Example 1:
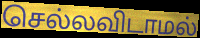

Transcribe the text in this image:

செல்லவிடாமல்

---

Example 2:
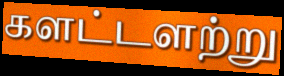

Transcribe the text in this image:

களட்டளற்று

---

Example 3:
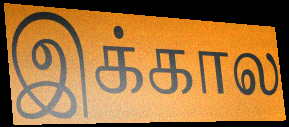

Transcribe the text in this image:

இக்கால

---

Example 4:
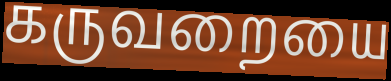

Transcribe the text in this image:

கருவறையை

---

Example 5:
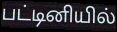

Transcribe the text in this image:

பட்டினியில்